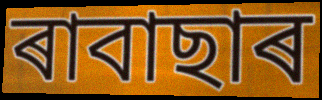
ৰাবাছাৰ